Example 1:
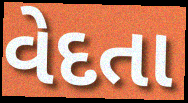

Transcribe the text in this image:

વેદતા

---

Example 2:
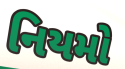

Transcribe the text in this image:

નિયમો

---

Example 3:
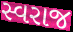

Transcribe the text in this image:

સ્વરાજ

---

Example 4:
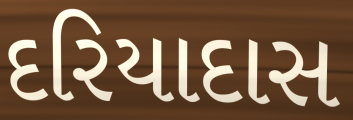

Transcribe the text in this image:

દરિયાદાસ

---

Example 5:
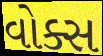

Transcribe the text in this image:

વોક્સ